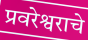
प्रवरेश्वराचे